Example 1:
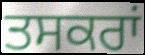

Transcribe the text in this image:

ਤਸਕਰਾਂ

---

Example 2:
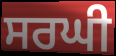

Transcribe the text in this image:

ਸਰਘੀ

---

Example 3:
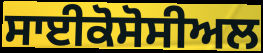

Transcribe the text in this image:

ਸਾਈਕੋਸੋਸੀਅਲ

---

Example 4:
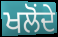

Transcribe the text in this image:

ਖਲੋਂਦੇ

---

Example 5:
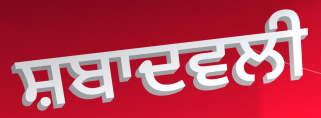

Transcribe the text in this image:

ਸ਼ਬਾਦਵਲੀ